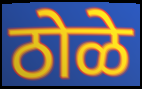
ठोळे